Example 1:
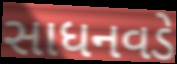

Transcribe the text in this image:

સાધનવડે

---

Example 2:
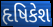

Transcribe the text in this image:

હૃષિકેશ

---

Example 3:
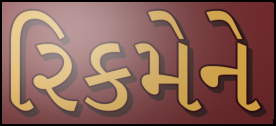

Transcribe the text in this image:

રિકમેને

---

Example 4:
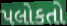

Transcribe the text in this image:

પલોકતો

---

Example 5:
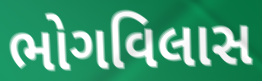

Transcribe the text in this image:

ભોગવિલાસ